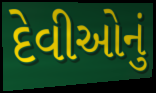
દેવીઓનું